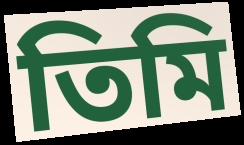
তিমি